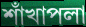
শাঁখাপলা